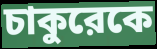
চাকুরেকে